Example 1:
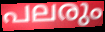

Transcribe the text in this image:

പലരും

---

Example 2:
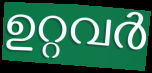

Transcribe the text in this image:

ഉറ്റവർ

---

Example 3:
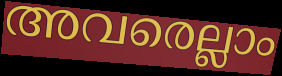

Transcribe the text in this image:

അവരെല്ലാം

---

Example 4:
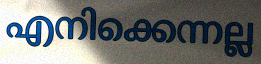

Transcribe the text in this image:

എനിക്കെന്നല്ല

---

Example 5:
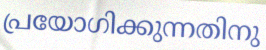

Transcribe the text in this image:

പ്രയോഗിക്കുന്നതിനു